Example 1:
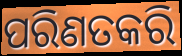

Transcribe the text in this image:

ପରିଣତକରି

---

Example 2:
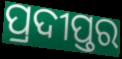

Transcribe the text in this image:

ପ୍ରଦୀପ୍ତର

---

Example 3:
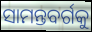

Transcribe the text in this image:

ସାମନ୍ତବର୍ଗକୁ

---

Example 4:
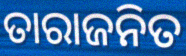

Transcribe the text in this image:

ତାରାଜନିତ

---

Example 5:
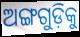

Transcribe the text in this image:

ଅଙ୍ଗଗୁଡ଼ିକୁ